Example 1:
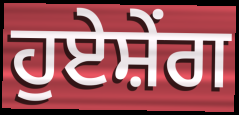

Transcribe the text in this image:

ਹੁਏਸ਼ੇਂਗ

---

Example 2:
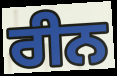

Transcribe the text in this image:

ਰੀਨ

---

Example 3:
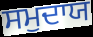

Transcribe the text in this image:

ਸਮੁਦਾਯ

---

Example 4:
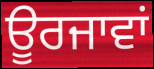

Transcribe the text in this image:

ਊਰਜਾਵਾਂ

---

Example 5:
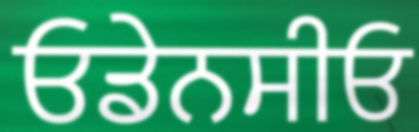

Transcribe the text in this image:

ਓਡੇਨਸੀਓ